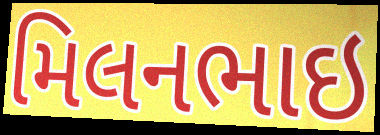
મિલનભાઇ